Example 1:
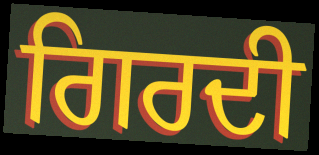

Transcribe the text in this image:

ਗਿਰਦੀ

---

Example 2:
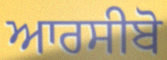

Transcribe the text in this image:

ਆਰਸੀਬੋ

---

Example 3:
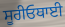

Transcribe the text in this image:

ਸੂਰੀਓਥਾਈ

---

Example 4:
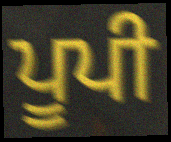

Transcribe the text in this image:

ਪੂਪੀ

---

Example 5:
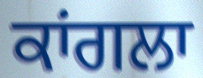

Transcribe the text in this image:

ਕਾਂਗਲਾ